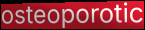
osteoporotic